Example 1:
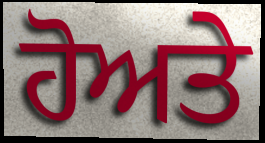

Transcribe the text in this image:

ਹੋਅਤੇ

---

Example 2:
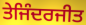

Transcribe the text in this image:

ਤੇਜਿੰਦਰਜੀਤ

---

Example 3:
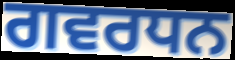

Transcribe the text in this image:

ਗਵਰਧਨ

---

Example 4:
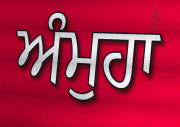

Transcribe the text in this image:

ਅੰਮੁਹਾ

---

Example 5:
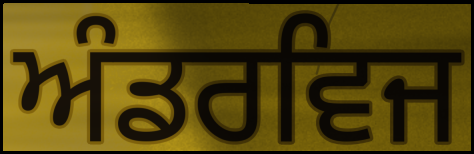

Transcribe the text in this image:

ਅੰਡਰਵਿਜ